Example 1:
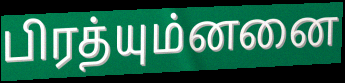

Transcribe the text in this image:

பிரத்யும்னனை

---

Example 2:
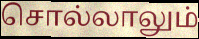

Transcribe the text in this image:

சொல்லாலும்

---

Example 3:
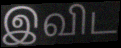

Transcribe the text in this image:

இவிட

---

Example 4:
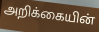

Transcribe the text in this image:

அறிக்கையின்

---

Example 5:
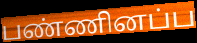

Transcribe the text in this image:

பண்ணினப்ப